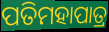
ପତିମହାପାତ୍ର